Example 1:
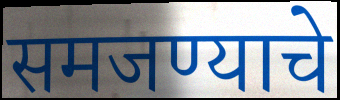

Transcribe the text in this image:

समजण्याचे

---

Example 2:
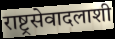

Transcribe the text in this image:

राष्ट्रसेवादलाशी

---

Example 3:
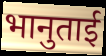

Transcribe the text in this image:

भानुताई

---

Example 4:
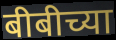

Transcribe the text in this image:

बीबीच्या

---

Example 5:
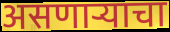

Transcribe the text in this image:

असणाऱ्याचा